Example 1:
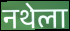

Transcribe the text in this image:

नथेला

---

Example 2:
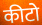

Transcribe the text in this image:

कीटो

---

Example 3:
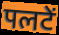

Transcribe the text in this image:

पलटें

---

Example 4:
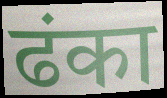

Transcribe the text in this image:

ढंका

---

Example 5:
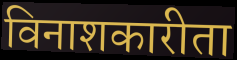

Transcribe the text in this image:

विनाशकारीता